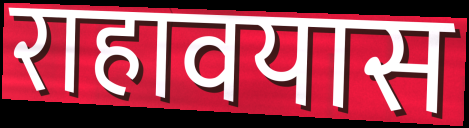
राहावयास